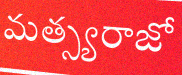
మత్స్యరాజో